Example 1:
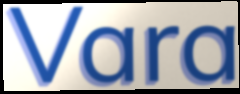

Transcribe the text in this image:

Vara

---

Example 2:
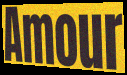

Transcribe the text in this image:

Amour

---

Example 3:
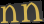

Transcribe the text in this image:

nn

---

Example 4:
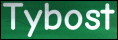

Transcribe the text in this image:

Tybost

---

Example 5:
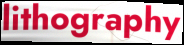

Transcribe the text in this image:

lithography